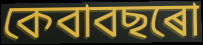
কেবাবছৰো